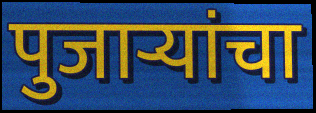
पुजाऱ्यांचा